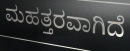
ಮಹತ್ತರವಾಗಿದೆ